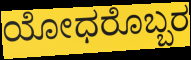
ಯೋಧರೊಬ್ಬರ